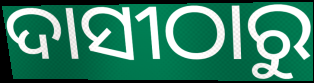
ଦାସୀଠାରୁ